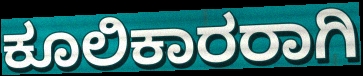
ಕೂಲಿಕಾರರಾಗಿ